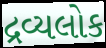
દ્રવ્યલોક